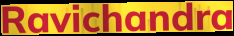
Ravichandra